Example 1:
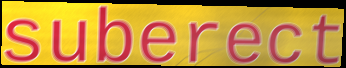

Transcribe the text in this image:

suberect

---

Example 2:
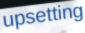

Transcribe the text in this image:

upsetting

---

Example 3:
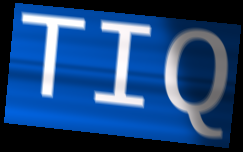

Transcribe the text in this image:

TIQ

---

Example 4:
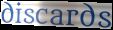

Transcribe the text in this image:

discards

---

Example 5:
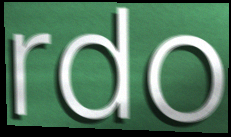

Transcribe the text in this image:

rdo